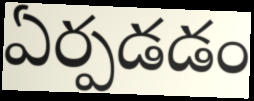
ఏర్పడడం